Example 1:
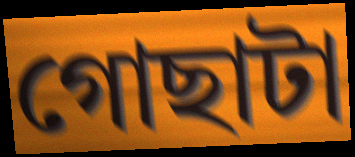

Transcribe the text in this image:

গোছাটা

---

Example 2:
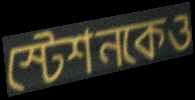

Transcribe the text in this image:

স্টেশনকেও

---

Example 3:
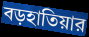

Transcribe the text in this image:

বড়হাতিয়ার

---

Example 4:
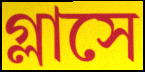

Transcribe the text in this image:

গ্লাসে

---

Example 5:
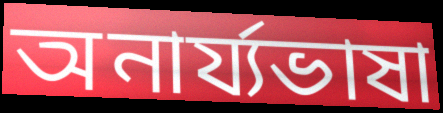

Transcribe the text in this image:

অনার্য্যভাষা